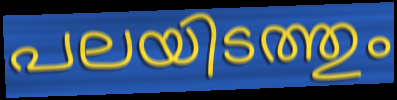
പലയിടത്തും